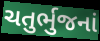
ચતુર્ભુજનાં